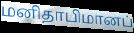
மனிதாபிமானப்